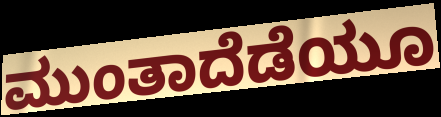
ಮುಂತಾದೆಡೆಯೂ